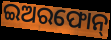
ଇଅରଫୋନ୍